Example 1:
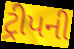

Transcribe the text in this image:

ટ્રીપની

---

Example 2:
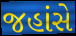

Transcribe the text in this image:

જહાંસે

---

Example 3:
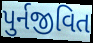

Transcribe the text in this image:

પુર્નજીવિત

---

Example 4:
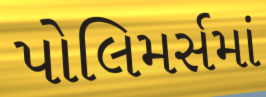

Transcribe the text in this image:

પોલિમર્સમાં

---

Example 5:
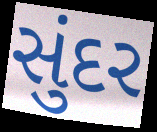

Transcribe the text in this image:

સુંદર